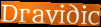
Dravidic